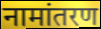
नामांतरण